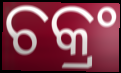
ଚକ୍ରଂ